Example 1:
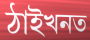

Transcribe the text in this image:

ঠাইখনত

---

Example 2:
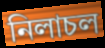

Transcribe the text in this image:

নিলাচল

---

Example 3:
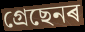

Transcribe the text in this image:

গ্ৰেছেনৰ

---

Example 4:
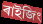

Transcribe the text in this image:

ৰাইজিং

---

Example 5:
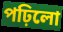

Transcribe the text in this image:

পঢ়িলো